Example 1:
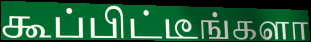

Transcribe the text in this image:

கூப்பிட்டீங்களா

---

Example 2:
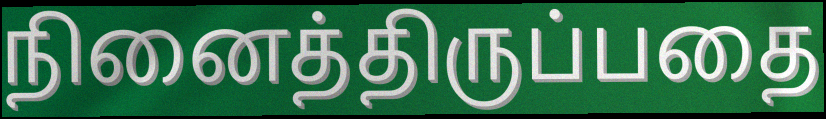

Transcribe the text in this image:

நினைத்திருப்பதை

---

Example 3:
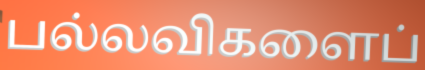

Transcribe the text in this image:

பல்லவிகளைப்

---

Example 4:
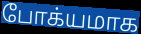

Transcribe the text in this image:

போக்யமாக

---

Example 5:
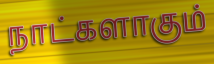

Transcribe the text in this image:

நாட்களாகும்